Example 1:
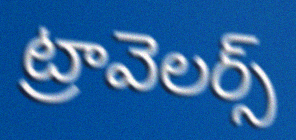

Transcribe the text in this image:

ట్రావెలర్స్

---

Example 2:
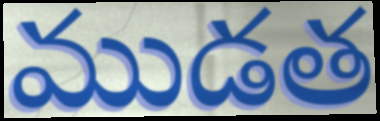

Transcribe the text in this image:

ముడత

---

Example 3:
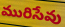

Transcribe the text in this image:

మురిసేవు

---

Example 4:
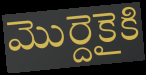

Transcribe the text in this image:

మొర్దెకైకి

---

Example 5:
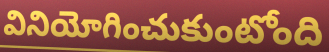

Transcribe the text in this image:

వినియోగించుకుంటోంది